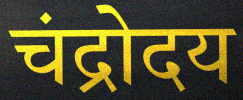
चंद्रोदय